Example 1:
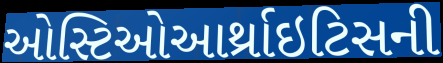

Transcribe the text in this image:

ઓસ્ટિઓઆર્થ્રાઇટિસની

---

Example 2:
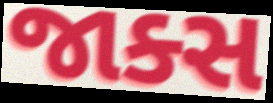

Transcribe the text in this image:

જાક્સ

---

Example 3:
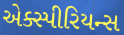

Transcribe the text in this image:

એક્સ્પીરિયન્સ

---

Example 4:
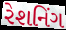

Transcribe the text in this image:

રેશનિંગ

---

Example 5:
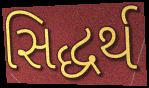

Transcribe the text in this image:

સિદ્ધર્થ